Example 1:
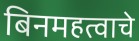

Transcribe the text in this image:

बिनमहत्वाचे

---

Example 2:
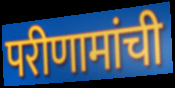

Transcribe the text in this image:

परीणामांची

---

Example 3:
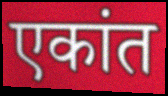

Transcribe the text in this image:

एकांत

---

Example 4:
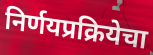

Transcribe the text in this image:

निर्णयप्रक्रियेचा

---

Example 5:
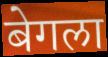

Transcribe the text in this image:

बेगला